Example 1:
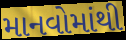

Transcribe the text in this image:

માનવોમાંથી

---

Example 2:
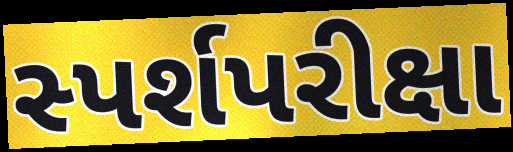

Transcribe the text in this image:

સ્પર્શપરીક્ષા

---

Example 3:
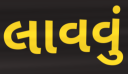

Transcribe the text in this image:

લાવવું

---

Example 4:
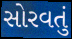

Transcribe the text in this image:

સોરવતું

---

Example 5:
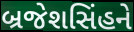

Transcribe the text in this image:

બ્રજેશસિંહને